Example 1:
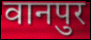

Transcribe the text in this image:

वानपुर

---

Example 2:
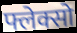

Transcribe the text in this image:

फ्लेक्सो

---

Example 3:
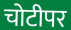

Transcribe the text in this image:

चोटीपर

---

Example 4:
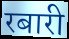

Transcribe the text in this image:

रबारी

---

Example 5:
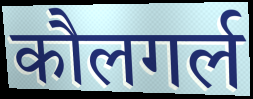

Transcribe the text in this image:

कौलगर्ल